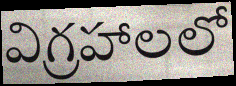
విగ్రహాలలో